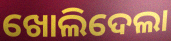
ଖୋଲିଦେଲା